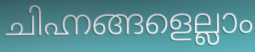
ചിഹ്നങ്ങളെല്ലാം